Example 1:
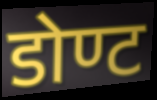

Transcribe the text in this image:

डोण्ट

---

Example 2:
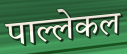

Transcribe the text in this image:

पाल्लेकल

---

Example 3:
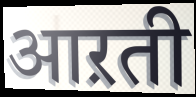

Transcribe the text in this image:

आऱती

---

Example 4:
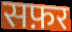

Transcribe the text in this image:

सफ़र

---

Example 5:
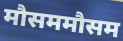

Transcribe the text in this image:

मौसममौसम